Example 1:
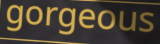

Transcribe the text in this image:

gorgeous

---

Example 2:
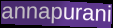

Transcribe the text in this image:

annapurani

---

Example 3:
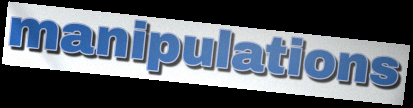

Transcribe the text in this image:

manipulations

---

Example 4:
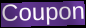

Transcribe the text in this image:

Coupon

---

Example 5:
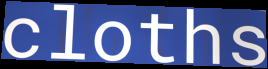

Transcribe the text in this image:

cloths